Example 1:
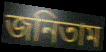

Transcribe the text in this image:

জনিতাম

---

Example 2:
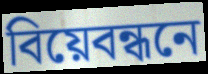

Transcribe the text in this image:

বিয়েবন্ধনে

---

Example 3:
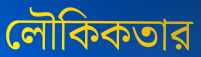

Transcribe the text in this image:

লৌকিকতার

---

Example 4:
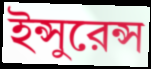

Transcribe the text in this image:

ইন্সুরেন্স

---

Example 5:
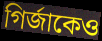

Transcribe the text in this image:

গির্জাকেও